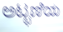
ಅಟ್ಟಣಿಯ